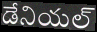
డేనియల్